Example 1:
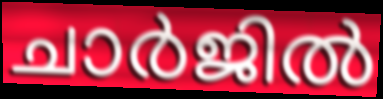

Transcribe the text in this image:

ചാർജിൽ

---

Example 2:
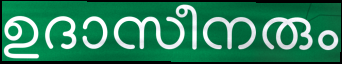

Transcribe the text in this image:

ഉദാസീനരും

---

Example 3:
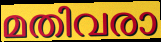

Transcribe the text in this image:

മതിവരാ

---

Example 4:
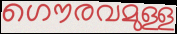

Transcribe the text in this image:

ഗൌരവമുള്ള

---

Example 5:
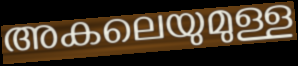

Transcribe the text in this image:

അകലെയുമുള്ള